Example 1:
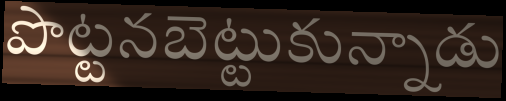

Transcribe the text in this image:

పొట్టనబెట్టుకున్నాడు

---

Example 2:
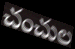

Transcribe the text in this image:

చంచుల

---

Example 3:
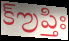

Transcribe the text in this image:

క్ఌప్తిః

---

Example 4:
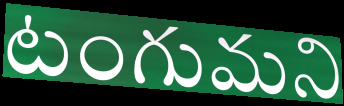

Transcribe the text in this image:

టంగుమని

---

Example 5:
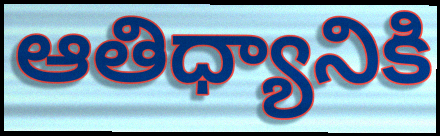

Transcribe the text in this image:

ఆతిధ్యానికి